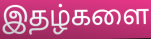
இதழ்களை